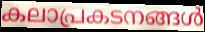
കലാപ്രകടനങ്ങൾ